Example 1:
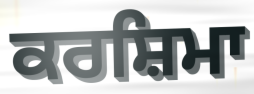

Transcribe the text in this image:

ਕਰਸ਼ਿਮਾ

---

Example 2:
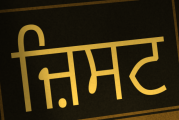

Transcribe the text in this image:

ਜ਼ਿਸਟ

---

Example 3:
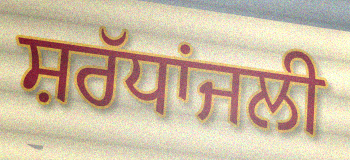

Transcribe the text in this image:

ਸ਼ਰੱਧਾਂਜਲੀ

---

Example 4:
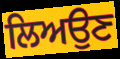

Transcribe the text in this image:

ਲਿਅਉਣ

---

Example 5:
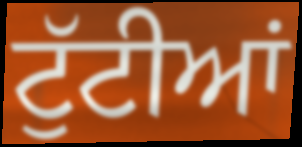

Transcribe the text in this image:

ਟੁੱਟੀਆਂ